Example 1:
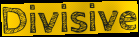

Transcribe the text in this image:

Divisive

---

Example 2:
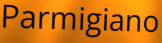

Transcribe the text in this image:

Parmigiano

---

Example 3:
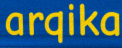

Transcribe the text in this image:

arqika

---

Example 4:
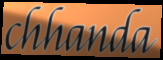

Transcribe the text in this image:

chhanda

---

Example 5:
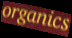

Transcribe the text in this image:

organics